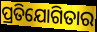
ପ୍ରତିଯୋଗିତାର